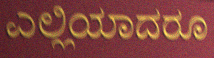
ಎಲ್ಲಿಯಾದರೂ